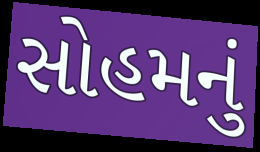
સોહમનું